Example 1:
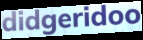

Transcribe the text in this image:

didgeridoo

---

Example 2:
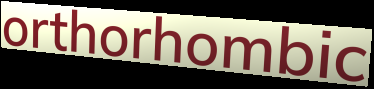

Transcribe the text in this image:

orthorhombic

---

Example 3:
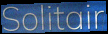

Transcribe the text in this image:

Solitair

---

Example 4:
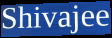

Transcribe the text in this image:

Shivajee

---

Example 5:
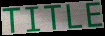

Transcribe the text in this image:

TITLE